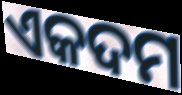
ଏକଦମ